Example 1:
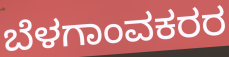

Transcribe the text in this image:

ಬೆಳಗಾಂವಕರರ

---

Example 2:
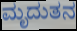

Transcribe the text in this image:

ಮೃದುತನ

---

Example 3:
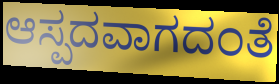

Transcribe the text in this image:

ಆಸ್ಪದವಾಗದಂತೆ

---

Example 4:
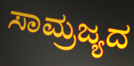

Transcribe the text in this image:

ಸಾಮ್ರಜ್ಯದ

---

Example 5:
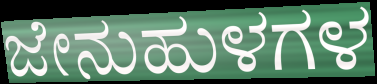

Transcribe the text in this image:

ಜೇನುಹುಳಗಳ